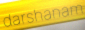
darshanam